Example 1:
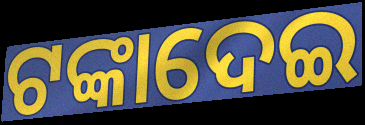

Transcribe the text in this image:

ଟଙ୍କାଦେଇ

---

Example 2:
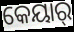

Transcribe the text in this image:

କେୟାର୍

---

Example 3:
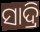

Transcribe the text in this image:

ସାଦ୍ରି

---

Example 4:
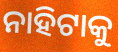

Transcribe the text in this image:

ନାହିଟାକୁ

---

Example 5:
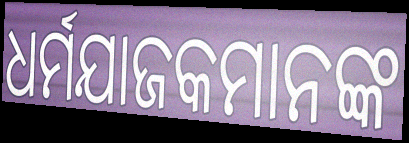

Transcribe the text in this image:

ଧର୍ମଯାଜକମାନଙ୍କ